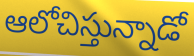
ఆలోచిస్తున్నాడో